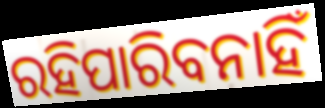
ରହିପାରିବନାହିଁ